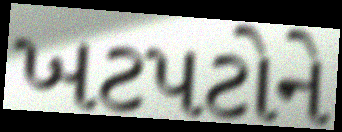
ખટપટોને